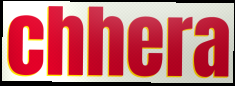
chhera